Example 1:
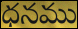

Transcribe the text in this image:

ధనము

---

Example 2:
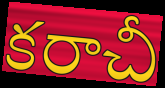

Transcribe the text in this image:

కరాచీ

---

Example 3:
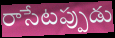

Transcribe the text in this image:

రాసేటప్పుడు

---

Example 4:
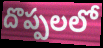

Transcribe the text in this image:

దొప్పలలో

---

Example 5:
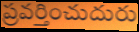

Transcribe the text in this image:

ప్రవర్తించుదురు